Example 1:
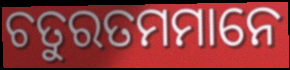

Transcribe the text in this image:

ଚତୁରତମମାନେ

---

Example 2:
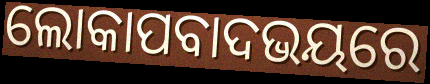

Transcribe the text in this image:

ଲୋକାପବାଦଭୟରେ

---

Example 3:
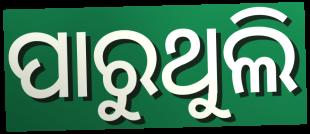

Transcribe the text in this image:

ପାରୁଥୁଲି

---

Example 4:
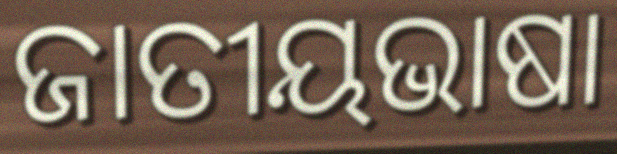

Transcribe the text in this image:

ଜାତୀୟଭାଷା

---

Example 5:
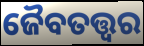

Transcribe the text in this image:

ଜୈବତତ୍ତ୍ୱର